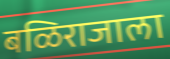
बळिराजाला